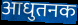
आधुतनक